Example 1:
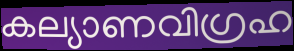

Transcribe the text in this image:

കല്യാണവിഗ്രഹ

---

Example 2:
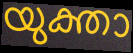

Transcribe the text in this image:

യുക്താ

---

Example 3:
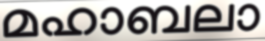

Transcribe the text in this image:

മഹാബലാ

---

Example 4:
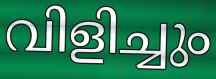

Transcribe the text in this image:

വിളിച്ചും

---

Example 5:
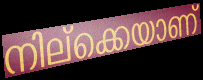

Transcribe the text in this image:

നില്ക്കെയാണ്